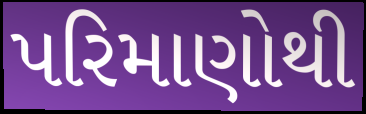
પરિમાણોથી